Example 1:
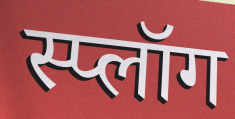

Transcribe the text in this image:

स्प्लॉग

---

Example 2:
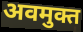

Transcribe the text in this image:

अवमुक्त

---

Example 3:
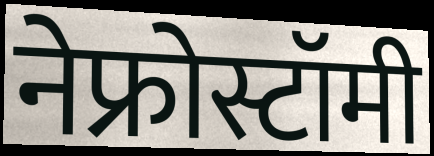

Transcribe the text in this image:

नेफ्रोस्टॉमी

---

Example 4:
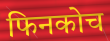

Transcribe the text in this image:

फिनकोच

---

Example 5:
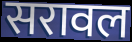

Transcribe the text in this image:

सरावल